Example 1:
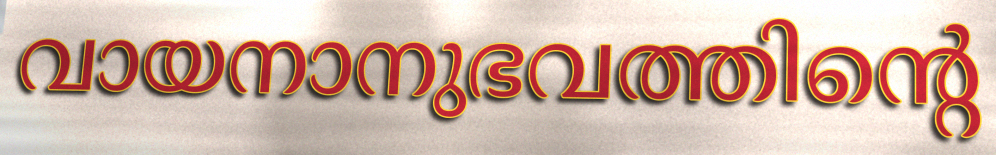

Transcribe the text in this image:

വായനാനുഭവത്തിന്റെ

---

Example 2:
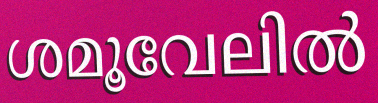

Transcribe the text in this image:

ശമൂവേലിൽ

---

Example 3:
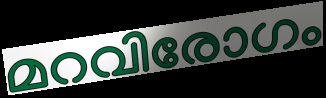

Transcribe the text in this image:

മറവിരോഗം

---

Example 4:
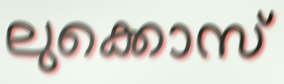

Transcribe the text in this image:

ലുക്കൊസ്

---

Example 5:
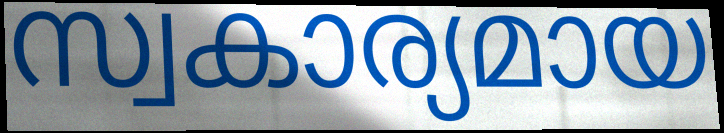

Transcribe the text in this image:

സ്വകാര്യമായ